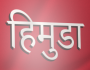
हिमुडा